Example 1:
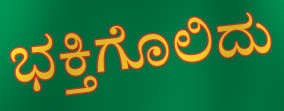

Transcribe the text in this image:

ಭಕ್ತಿಗೊಲಿದು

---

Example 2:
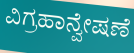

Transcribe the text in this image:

ವಿಗ್ರಹಾನ್ವೇಷಣೆ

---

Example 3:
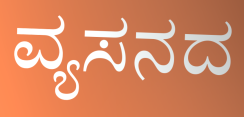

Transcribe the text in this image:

ವ್ಯಸನದ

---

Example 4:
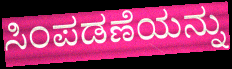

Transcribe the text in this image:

ಸಿಂಪಡಣೆಯನ್ನು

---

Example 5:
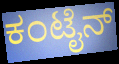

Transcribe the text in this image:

ಕಂಟೈನ್